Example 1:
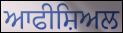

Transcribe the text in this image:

ਆਫੀਸ਼ਿਅਲ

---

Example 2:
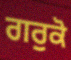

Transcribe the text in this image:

ਗਰੁਕੋ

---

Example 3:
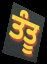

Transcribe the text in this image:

ਤੰਤੂ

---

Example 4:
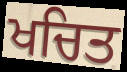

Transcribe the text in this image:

ਖਚਿਤ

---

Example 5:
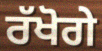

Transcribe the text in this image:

ਰੱਖੋਗੇ